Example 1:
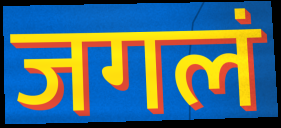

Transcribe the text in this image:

जगलं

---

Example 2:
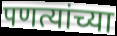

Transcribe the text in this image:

पणत्यांच्या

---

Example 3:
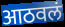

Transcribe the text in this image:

आठवलं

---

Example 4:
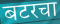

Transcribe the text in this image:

बटरचा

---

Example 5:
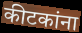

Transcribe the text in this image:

कीटकांना